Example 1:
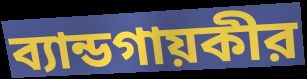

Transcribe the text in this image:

ব্যান্ডগায়কীর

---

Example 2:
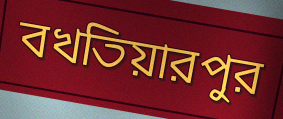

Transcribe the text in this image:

বখতিয়ারপুর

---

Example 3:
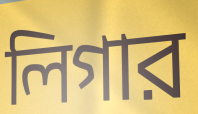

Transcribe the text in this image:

লিগার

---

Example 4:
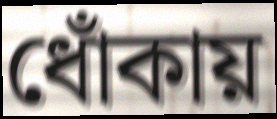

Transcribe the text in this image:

ধোঁকায়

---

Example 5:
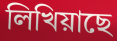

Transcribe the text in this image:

লিখিয়াছে